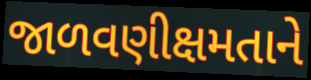
જાળવણીક્ષમતાને